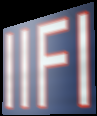
IIFI